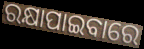
ରକ୍ଷାପାଇବାରେ